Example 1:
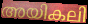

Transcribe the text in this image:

അയികലി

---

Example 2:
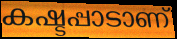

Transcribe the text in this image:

കഷ്ടപ്പാടാണ്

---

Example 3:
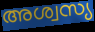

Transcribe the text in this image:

അശ്വസ്യ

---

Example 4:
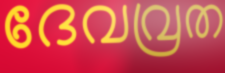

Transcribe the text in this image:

ദേവവ്രത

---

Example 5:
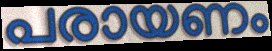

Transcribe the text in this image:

പരായണം